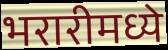
भरारीमध्ये